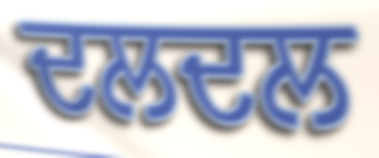
ਦਲਦਲ